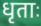
धृताः